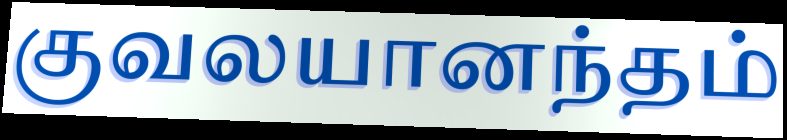
குவலயானந்தம்